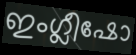
ഇംഗ്ലീഷോ